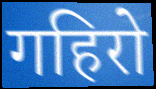
गहिरो